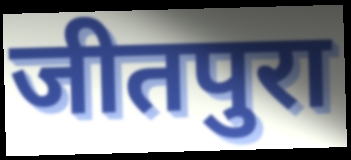
जीतपुरा